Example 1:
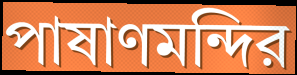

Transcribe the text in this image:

পাষাণমন্দির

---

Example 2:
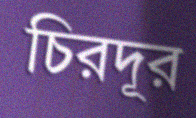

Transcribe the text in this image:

চিরদূর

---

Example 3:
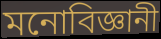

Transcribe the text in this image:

মনোবিজ্ঞানী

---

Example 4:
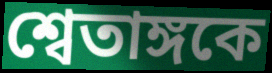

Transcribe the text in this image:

শ্বেতাঙ্গকে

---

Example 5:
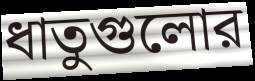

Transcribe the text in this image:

ধাতুগুলোর